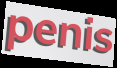
penis